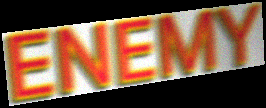
ENEMY